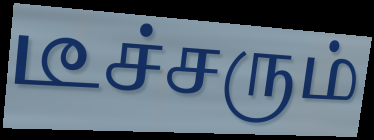
டீச்சரும்